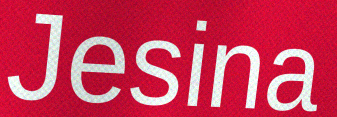
Jesina